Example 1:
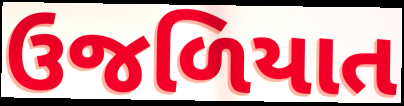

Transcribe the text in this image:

ઉજળિયાત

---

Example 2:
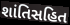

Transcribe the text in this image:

શાંતિસહિત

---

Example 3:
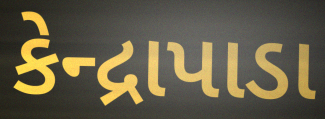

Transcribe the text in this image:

કેન્દ્રાપાડા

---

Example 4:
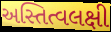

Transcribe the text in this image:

અસ્તિત્વલક્ષી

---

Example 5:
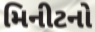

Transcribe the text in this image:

મિનીટનો